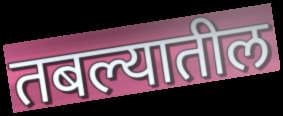
तबल्यातील